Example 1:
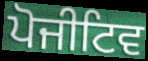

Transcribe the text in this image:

ਪੋਜੀਟਿਵ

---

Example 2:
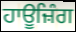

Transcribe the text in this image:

ਹਾਊਜ਼ਿੰਗ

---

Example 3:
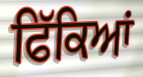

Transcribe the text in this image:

ਫਿੱਕਿਆਂ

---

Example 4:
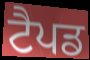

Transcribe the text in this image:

ਟੈਪਡ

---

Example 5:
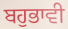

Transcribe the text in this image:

ਬਹੁਭਾਵੀ